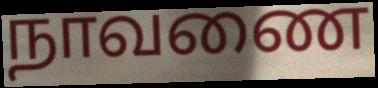
நாவணை